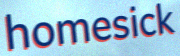
homesick